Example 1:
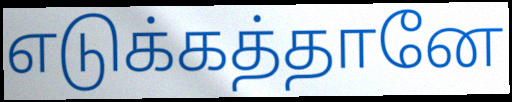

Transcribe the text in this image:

எடுக்கத்தானே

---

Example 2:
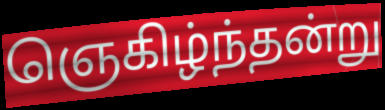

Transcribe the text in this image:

ஞெகிழ்ந்தன்று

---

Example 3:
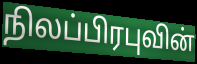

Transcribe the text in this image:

நிலப்பிரபுவின்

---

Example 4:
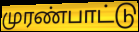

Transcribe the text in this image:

முரண்பாட்டு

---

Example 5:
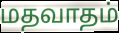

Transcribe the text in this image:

மதவாதம்